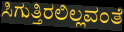
ಸಿಗುತ್ತಿರಲಿಲ್ಲವಂತೆ